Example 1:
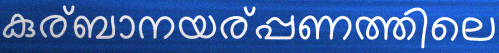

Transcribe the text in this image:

കുര്ബാനയര്പ്പണത്തിലെ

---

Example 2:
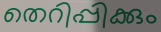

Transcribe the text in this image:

തെറിപ്പിക്കും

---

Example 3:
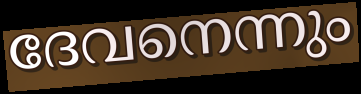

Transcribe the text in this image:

ദേവനെന്നും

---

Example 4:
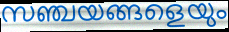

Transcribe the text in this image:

സഞ്ചയങ്ങളെയും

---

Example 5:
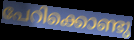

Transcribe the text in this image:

പേറിക്കൊണ്ടു